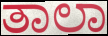
ತಾಲಾ